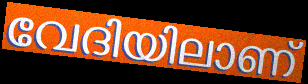
വേദിയിലാണ്